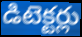
డిటెక్టర్లు